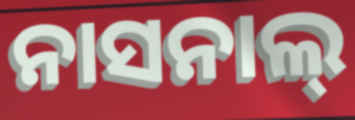
ନାସନାଲ୍